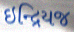
ઇન્દ્રિયજ